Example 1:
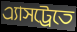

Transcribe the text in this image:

এ্যাসট্রেতে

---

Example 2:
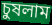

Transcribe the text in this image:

চুষলাম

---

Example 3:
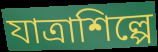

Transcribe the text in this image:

যাত্রাশিল্পে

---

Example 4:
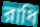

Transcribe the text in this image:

রাধি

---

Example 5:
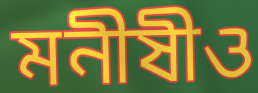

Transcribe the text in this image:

মনীষীও